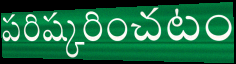
పరిష్కరించటం